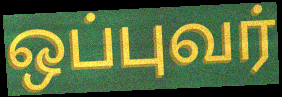
ஒப்புவர்